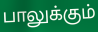
பாலுக்கும்